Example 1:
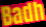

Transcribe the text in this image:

Badh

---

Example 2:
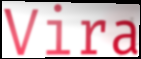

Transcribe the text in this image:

Vira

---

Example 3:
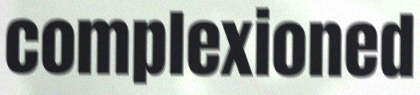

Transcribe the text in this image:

complexioned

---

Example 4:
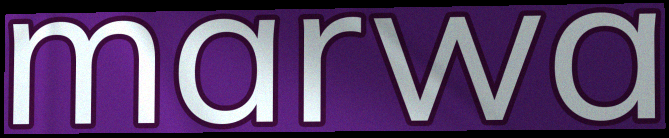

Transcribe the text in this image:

marwa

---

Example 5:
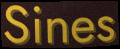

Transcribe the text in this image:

Sines